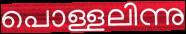
പൊള്ളലിന്നു